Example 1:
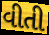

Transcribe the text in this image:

વીતી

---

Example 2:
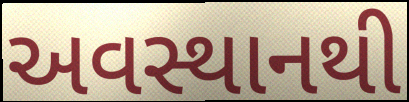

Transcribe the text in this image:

અવસ્થાનથી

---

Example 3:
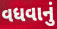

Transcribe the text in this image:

વધવાનું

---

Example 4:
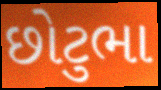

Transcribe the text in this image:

છોટુભા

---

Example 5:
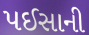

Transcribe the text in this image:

પઈસાની